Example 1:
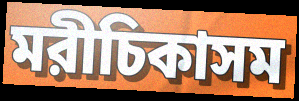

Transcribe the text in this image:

মরীচিকাসম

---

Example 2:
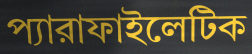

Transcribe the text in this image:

প্যারাফাইলেটিক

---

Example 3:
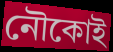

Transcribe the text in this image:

নৌকোই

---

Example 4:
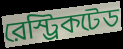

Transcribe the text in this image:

রেস্ট্রিকটেড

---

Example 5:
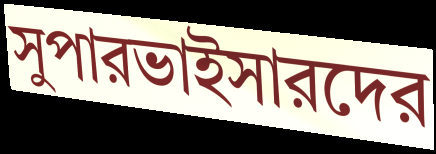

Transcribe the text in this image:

সুপারভাইসারদের